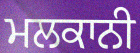
ਮਲਕਾਨੀ